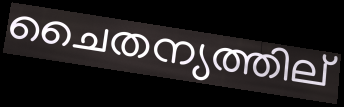
ചൈതന്യത്തില്